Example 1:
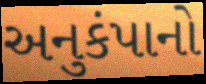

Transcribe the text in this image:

અનુકંપાનો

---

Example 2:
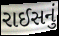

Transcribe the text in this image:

રાઈસનું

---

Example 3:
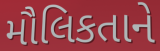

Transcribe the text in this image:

મૌલિકતાને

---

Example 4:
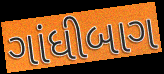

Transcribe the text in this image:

ગાંધીબાગ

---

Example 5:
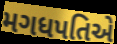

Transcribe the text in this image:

મગધપતિએ